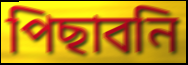
পিছাবনি